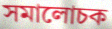
সমালোচক